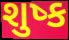
શુષ્ક